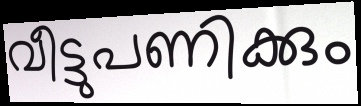
വീട്ടുപണിക്കും